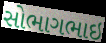
સોભાગભાઇ